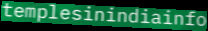
templesinindiainfo